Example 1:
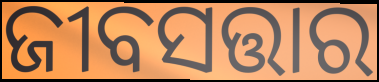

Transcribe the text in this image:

ଜୀବସତ୍ତାର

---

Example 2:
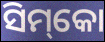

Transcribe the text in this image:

ସିମ୍‌କୋ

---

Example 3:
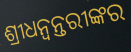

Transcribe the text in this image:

ଶ୍ରୀଧନ୍ୱନ୍ତରୀଙ୍କର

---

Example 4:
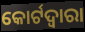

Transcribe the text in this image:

କୋର୍ଟଦ୍ୱାରା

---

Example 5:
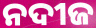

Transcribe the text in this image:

ନଦୀଜ